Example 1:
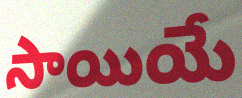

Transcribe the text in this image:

సాయియే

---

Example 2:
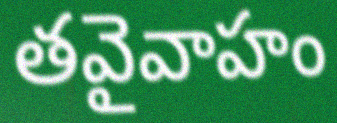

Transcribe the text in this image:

తవైవాహం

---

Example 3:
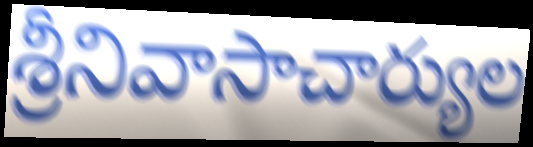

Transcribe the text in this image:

శ్రీనివాసాచార్యుల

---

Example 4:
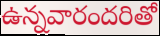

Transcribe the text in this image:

ఉన్నవారందరితో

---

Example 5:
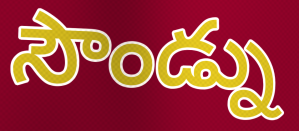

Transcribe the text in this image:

సౌండ్ను